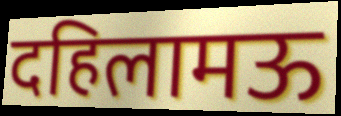
दहिलामऊ